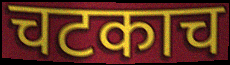
चटकाच